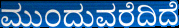
ಮುಂದುವರೆದಿದೆ